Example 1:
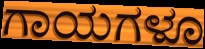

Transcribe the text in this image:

ಗಾಯಗಳೂ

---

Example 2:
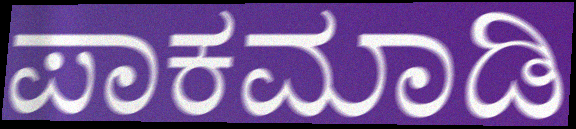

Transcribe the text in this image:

ಪಾಕಮಾಡಿ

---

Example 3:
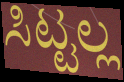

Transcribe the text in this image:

ಸಿಟ್ಟಲ್ಲ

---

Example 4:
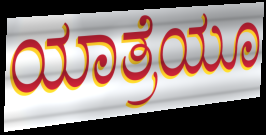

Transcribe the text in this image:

ಯಾತ್ರೆಯೂ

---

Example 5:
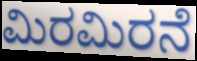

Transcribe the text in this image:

ಮಿರಮಿರನೆ